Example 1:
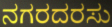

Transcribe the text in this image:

ನಗರದರಸು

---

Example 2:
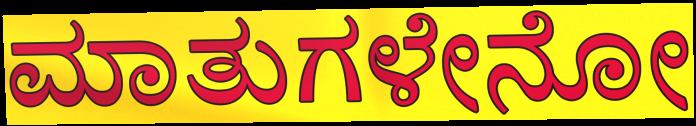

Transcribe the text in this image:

ಮಾತುಗಳೇನೋ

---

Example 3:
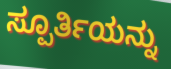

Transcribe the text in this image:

ಸ್ಪೂರ್ತಿಯನ್ನು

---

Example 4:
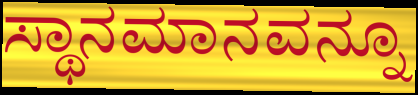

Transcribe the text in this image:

ಸ್ಥಾನಮಾನವನ್ನೂ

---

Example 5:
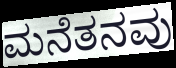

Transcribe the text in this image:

ಮನೆತನವು